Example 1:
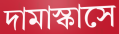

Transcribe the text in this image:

দামাস্কাসে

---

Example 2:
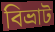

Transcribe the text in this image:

বিভ্রাট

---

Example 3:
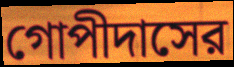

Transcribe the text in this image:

গোপীদাসের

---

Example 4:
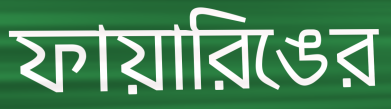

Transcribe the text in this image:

ফায়ারিঙের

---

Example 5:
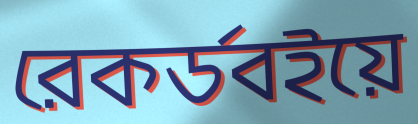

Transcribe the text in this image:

রেকর্ডবইয়ে